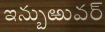
ఇన్బుఱువర్